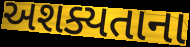
અશક્યતાના